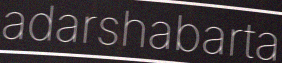
adarshabarta